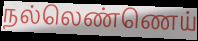
நல்லெண்ணெய்